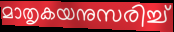
മാതൃകയനുസരിച്ച്